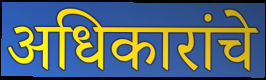
अधिकारांचे